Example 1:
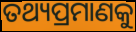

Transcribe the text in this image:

ତଥ୍ୟପ୍ରମାଣକୁ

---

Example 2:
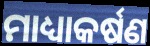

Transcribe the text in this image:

ମାଧ୍ୟାକର୍ଷଣ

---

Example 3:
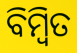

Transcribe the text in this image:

ବିମ୍ବିତ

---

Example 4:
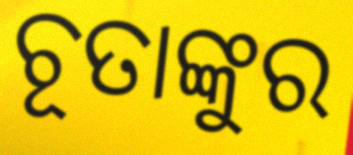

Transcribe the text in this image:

ଚୂତାଙ୍କୁର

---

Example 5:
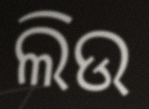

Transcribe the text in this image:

ଲିଉ